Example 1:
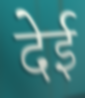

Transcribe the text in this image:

देई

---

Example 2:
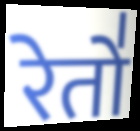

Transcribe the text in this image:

रेतो॑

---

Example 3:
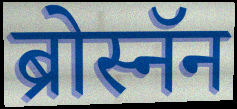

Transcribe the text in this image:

ब्रोस्नॅन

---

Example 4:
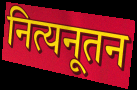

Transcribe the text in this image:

नित्यनूतन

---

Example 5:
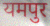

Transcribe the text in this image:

यमपुर